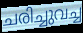
ചരിച്ചുവച്ച